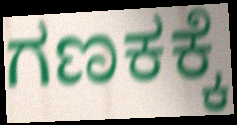
ಗಣಕಕ್ಕೆ